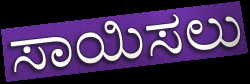
ಸಾಯಿಸಲು